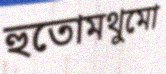
হুতোমথুমো